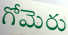
గోమెరు